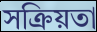
সক্রিয়তা